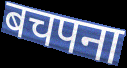
बचपना